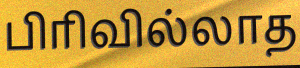
பிரிவில்லாத